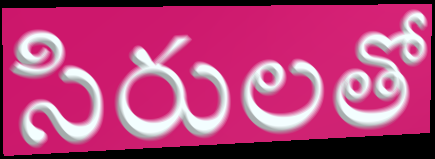
సిరులతో